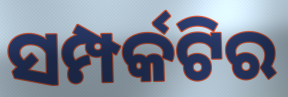
ସମ୍ପର୍କଟିର